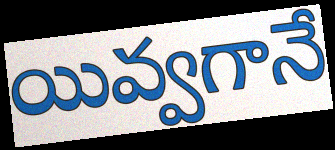
యివ్వగానే